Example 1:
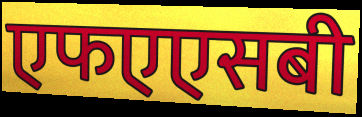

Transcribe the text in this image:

एफएएसबी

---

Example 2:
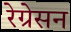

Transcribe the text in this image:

रेग्रेसन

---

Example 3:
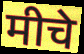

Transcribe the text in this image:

मीचे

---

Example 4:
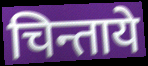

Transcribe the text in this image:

चिन्ताये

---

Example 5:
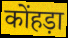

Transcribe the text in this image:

कोंहड़ा